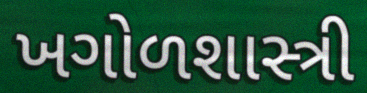
ખગોળશાસ્ત્રી